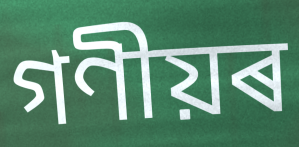
গণীয়ৰ